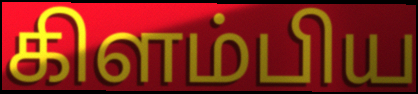
கிளம்பிய